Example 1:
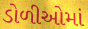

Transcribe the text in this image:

ડોળીઓમાં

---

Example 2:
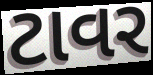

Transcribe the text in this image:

ટાવર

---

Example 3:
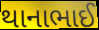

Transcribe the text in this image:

થાનાભાઈ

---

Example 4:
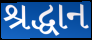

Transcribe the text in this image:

શ્રદ્ધાન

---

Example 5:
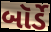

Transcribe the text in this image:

બૉર્ડે